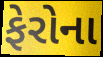
ફેરોના